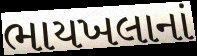
ભાયખલાનાં